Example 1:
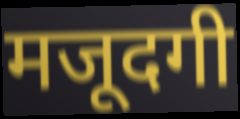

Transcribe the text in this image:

मजूदगी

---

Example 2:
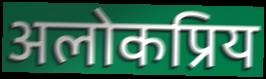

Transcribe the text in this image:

अलोकप्रिय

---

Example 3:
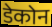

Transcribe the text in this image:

डेकोन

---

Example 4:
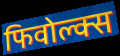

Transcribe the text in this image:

फिवोल्क्स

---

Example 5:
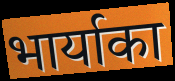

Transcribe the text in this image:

भार्याका